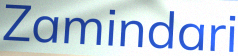
Zamindari